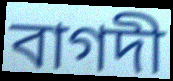
বাগদী